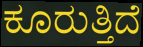
ಕೂರುತ್ತಿದೆ